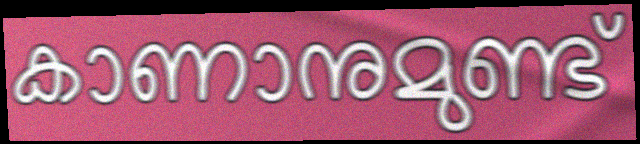
കാണാനുമുണ്ട്